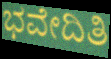
ಭವೇದಿತಿ